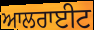
ਆਲਰਾਈਟ